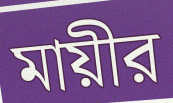
মায়ীর